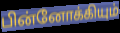
பின்னோக்கியும்